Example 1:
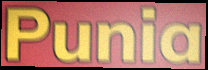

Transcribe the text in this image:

Punia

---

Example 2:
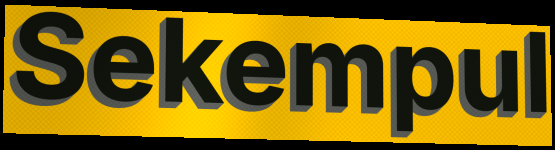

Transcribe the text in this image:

Sekempul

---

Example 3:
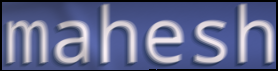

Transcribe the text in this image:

mahesh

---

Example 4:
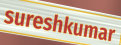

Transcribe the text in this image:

sureshkumar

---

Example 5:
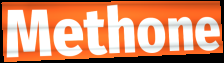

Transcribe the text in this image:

Methone